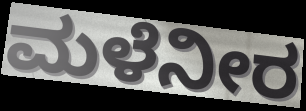
ಮಳೆನೀರ